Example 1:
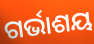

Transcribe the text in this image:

ଗର୍ଭାଶୟ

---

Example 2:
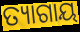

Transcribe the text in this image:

ତ୍ୟାଗାୟ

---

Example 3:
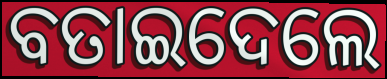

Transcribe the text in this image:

ବତାଇଦେଲେ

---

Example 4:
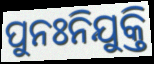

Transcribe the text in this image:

ପୁନଃନିଯୁକ୍ତି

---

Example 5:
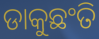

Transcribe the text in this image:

ଡାକୁଛଂତି